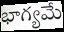
భాగ్యమే